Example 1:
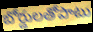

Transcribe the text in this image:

బోర్డులతోపాటు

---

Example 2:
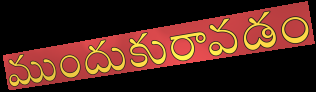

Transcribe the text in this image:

ముందుకురావడం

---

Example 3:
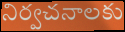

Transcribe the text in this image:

నిర్వచనాలకు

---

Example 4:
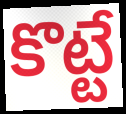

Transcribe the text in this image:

కొట్టే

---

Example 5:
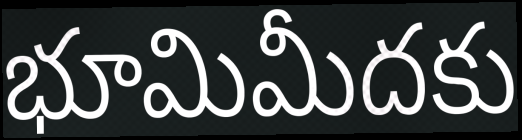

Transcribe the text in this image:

భూమిమీదకు